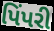
પિંપરી